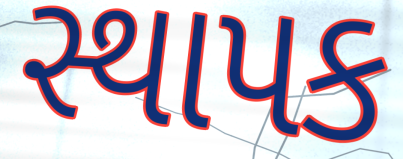
સ્થાપક